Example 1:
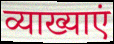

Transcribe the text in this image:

व्याख्याएं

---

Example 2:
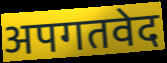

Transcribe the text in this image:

अपगतवेद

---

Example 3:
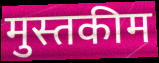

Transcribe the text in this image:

मुस्तकीम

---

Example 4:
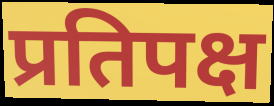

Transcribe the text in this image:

प्रतिपक्ष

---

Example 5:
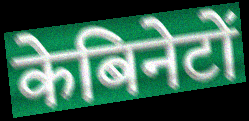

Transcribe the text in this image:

केबिनेटों